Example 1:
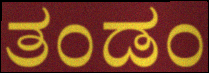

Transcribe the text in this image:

ತಂಡಂ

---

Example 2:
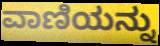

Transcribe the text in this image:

ವಾಣಿಯನ್ನು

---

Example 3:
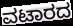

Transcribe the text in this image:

ವಟಾರದ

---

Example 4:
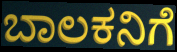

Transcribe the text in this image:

ಬಾಲಕನಿಗೆ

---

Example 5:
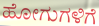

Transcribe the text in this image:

ಹೋಗುಗಳಿಗೆ